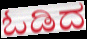
ಓಡಿದ